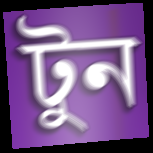
টুন